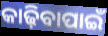
କାଢ଼ିବାପାଇଁ